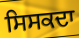
ਸਿਸਕਦਾ